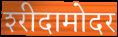
श्रीदामोदर